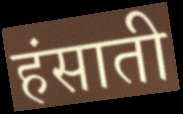
हंसाती